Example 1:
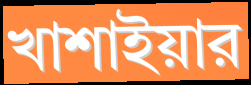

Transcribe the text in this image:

খাশাইয়ার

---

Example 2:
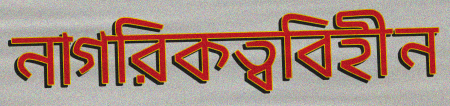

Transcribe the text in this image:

নাগরিকত্ববিহীন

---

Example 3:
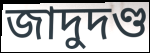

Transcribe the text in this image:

জাদুদণ্ড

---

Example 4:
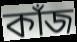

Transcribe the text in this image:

কাঁজ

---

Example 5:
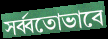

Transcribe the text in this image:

সর্ব্বতোভাবে